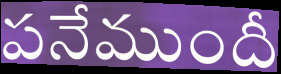
పనేముందీ